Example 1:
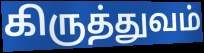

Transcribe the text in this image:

கிருத்துவம்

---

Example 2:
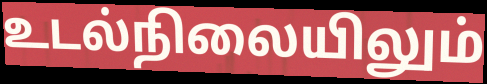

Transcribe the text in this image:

உடல்நிலையிலும்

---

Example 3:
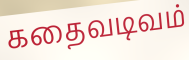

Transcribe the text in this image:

கதைவடிவம்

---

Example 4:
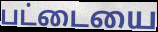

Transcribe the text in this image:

பட்டையை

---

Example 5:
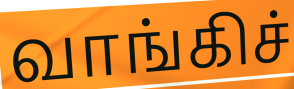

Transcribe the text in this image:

வாங்கிச்